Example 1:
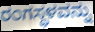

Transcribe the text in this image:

ರಂಗಸ್ಥಳವನ್ನು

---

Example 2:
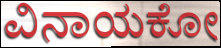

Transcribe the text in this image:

ವಿನಾಯಕೋ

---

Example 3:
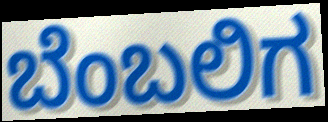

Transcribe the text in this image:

ಬೆಂಬಲಿಗ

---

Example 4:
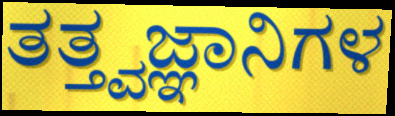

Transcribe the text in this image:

ತತ್ತ್ವಜ್ಞಾನಿಗಳ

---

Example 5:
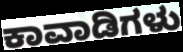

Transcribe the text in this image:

ಕಾವಾಡಿಗಳು